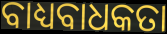
ବାଧ୍ୟବାଧକତା